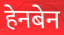
हेनबेन